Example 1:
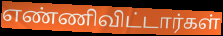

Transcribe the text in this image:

எண்ணிவிட்டார்கள்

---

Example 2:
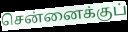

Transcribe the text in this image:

சென்னைக்குப்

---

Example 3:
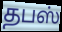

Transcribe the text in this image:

தபஸ்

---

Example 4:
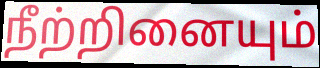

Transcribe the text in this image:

நீற்றினையும்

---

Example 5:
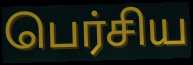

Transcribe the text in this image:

பெர்சிய